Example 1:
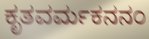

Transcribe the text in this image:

ಕೃತವರ್ಮಕನನಂ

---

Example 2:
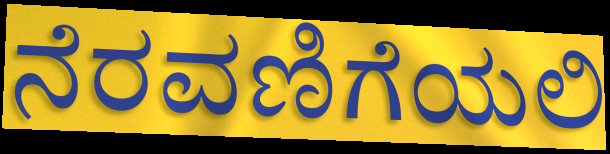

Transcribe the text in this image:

ನೆರವಣಿಗೆಯಲಿ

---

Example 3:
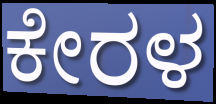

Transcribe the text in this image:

ಕೇರಳ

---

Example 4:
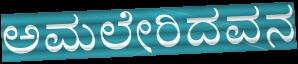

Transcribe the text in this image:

ಅಮಲೇರಿದವನ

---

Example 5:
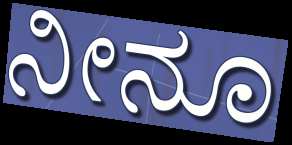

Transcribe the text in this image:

ನೀನೂ